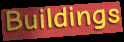
Buildings